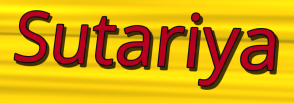
Sutariya